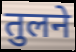
तुलने